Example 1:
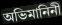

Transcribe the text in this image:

অভিমানিনী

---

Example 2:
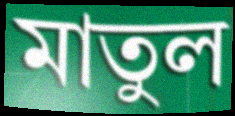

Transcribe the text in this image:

মাতুল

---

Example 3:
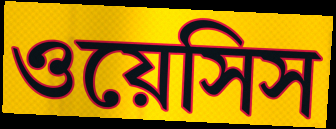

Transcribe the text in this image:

ওয়েসিস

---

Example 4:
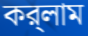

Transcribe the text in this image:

কর্‌লাম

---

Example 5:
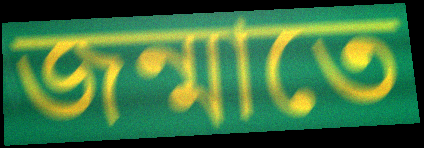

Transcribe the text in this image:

জন্মাতে